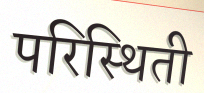
परिस्थिती